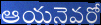
ఆయనెవరో